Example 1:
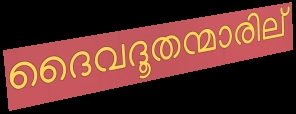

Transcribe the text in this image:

ദൈവദൂതന്മാരില്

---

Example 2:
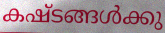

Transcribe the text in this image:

കഷ്ടങ്ങൾക്കു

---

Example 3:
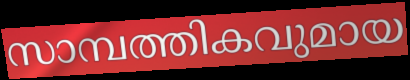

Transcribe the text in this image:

സാമ്പത്തികവുമായ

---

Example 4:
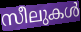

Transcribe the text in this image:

സീലുകൾ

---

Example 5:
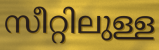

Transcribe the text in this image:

സീറ്റിലുള്ള